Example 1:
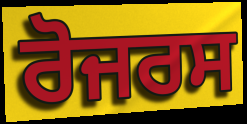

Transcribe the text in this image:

ਰੋਜਰਸ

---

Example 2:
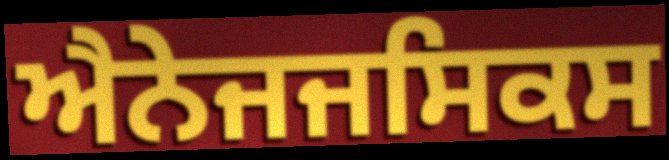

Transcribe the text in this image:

ਐਨੇਜਜਸਿਕਸ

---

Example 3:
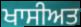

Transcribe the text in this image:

ਖਾਸੀਅਤ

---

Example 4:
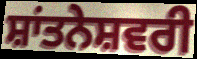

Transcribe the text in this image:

ਸ਼ਾਂਤਨੇਸ਼ਵਰੀ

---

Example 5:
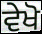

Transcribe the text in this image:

ਵੇਖੋ